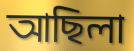
আছিলা